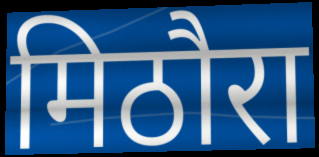
मिठौरा